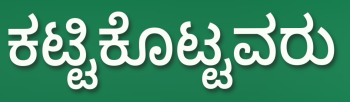
ಕಟ್ಟಿಕೊಟ್ಟವರು